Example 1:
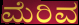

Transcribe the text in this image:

ಮೆರಿವ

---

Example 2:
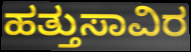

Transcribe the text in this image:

ಹತ್ತುಸಾವಿರ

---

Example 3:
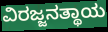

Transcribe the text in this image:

ವಿರಜ್ಜನತ್ಥಾಯ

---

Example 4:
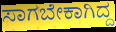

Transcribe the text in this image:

ಸಾಗಬೇಕಾಗಿದ್ದ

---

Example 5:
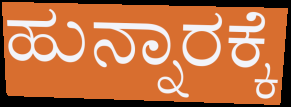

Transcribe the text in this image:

ಹುನ್ನಾರಕ್ಕೆ